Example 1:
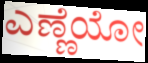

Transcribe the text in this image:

ಎಣ್ಣೆಯೋ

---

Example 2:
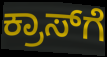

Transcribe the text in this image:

ಕ್ರಾಸ್‌ಗೆ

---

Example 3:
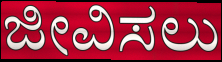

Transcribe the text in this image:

ಜೀವಿಸಲು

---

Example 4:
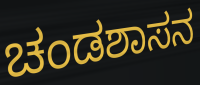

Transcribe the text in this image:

ಚಂಡಶಾಸನ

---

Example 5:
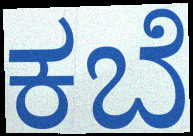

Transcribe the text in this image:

ಕಬೆ